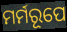
ମର୍ମରୂପେ